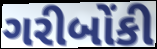
ગરીબોંકી